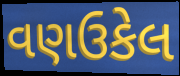
વણઉકેલ